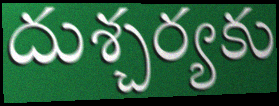
దుశ్చర్యకు